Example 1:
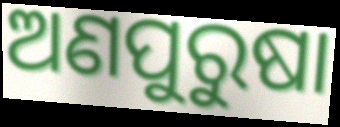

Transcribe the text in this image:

ଅଣପୁରୁଷା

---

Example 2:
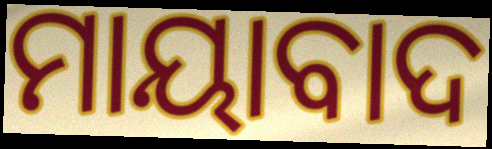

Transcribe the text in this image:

ମାୟାବାଦ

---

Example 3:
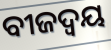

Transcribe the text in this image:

ବୀଜଦ୍ଵୟ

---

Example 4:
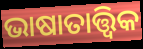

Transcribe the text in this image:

ଭାଷାତାତ୍ତ୍ୱିକ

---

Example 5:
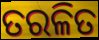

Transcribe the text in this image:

ତରଳିତ